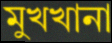
মুখখানা